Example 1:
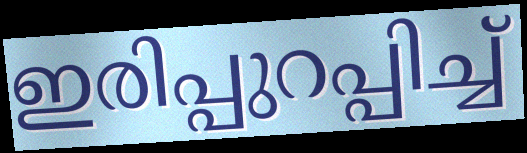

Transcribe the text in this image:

ഇരിപ്പുറപ്പിച്ച്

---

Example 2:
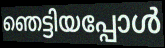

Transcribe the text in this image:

ഞെട്ടിയപ്പോൾ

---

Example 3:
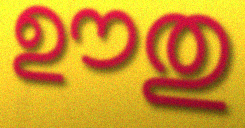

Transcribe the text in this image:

ഊതു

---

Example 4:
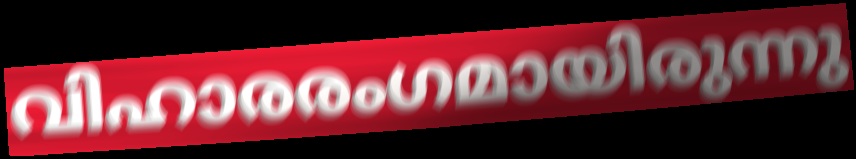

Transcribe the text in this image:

വിഹാരരംഗമായിരുന്നു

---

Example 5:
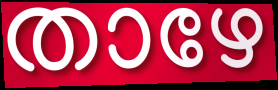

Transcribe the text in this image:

താഴേ